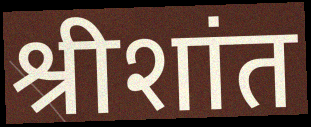
श्रीशांत